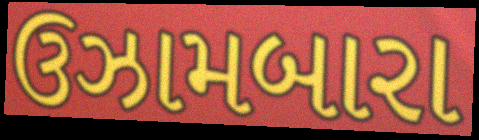
ઉઝામબારા